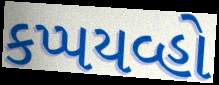
કપ્પયવ્હો